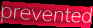
prevented